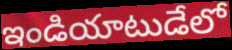
ఇండియాటుడేలో